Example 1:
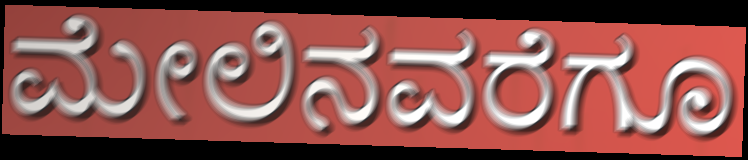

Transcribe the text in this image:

ಮೇಲಿನವರೆಗೂ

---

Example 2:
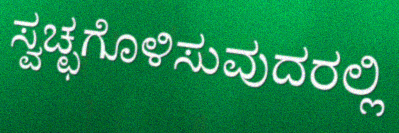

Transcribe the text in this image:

ಸ್ವಚ್ಛಗೊಳಿಸುವುದರಲ್ಲಿ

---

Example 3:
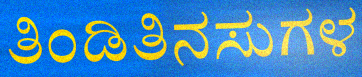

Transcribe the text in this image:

ತಿಂಡಿತಿನಸುಗಳ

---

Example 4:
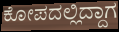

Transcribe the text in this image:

ಕೋಪದಲ್ಲಿದ್ದಾಗ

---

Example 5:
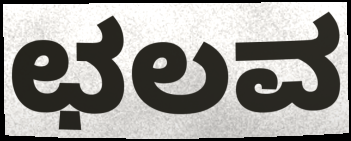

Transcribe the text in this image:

ಛಲವ